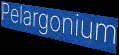
Pelargonium